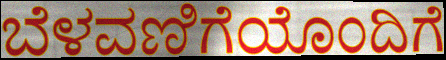
ಬೆಳವಣಿಗೆಯೊಂದಿಗೆ